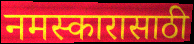
नमस्कारासाठी